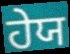
ਹੇਯ